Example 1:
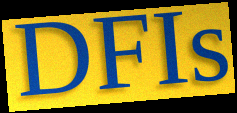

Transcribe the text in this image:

DFIs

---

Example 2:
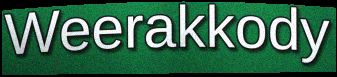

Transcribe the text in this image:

Weerakkody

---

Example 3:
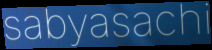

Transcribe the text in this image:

sabyasachi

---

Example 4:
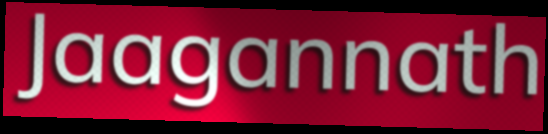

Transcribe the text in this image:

Jaagannath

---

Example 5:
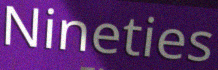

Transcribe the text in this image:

Nineties